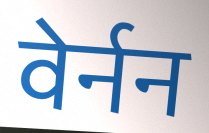
वेर्नन